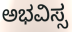
ಅಭವಿಸ್ಸ